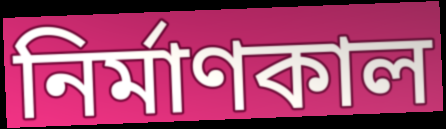
নির্মাণকাল